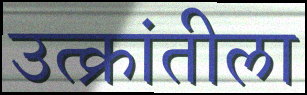
उत्क्रांतीला